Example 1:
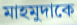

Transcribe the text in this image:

মাহমুদাকে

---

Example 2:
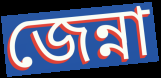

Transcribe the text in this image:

জেন্না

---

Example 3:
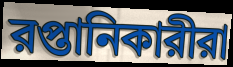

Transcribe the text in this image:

রপ্তানিকারীরা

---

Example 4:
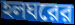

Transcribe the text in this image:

হলঘরের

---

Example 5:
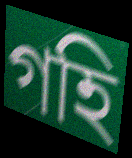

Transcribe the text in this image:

গহি